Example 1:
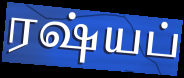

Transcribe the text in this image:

ரஷ்யப்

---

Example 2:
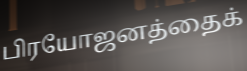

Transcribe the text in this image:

பிரயோஜனத்தைக்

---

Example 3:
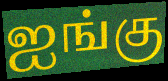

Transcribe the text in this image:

ஐங்கு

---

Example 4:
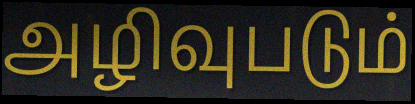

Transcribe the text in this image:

அழிவுபடும்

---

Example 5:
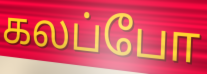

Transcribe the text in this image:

கலப்போ